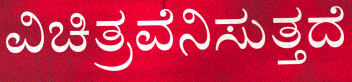
ವಿಚಿತ್ರವೆನಿಸುತ್ತದೆ